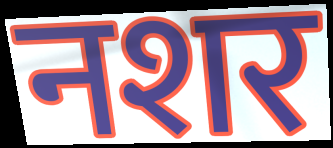
नशर